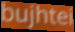
bujhtei